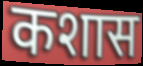
कशास